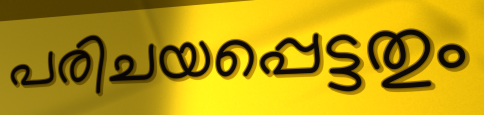
പരിചയപ്പെട്ടതും